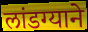
लांडग्याने